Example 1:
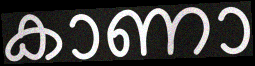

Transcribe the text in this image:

കാണാ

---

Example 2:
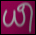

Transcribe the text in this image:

ധീ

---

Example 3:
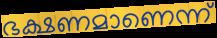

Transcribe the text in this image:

ഭക്ഷണമാണെന്ന്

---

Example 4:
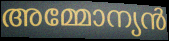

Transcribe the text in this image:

അമ്മോന്യൻ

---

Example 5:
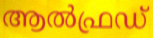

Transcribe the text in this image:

ആൽഫ്രഡ്